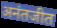
अनंतजीत